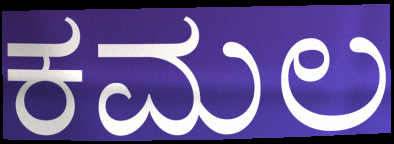
ಕಮಲ